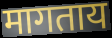
मागताय